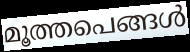
മൂത്തപെങ്ങൾ